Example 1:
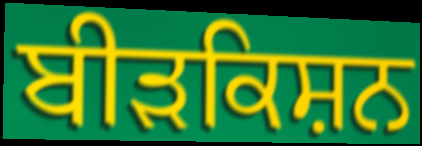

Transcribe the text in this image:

ਬੀੜਕਿਸ਼ਨ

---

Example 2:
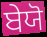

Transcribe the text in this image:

ਬੇਯੋ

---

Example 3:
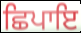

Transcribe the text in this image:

ਛਿਪਾਇ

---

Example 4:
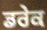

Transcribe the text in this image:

ਡਰੇਕ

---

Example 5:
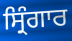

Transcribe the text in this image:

ਸ੍ਰਿੰਗਾਰ